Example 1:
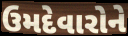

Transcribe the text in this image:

ઉમદેવારોને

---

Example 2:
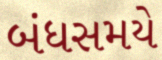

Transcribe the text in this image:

બંધસમયે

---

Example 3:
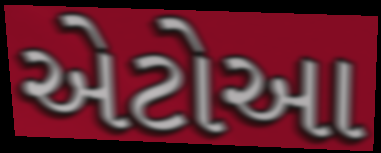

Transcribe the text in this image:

એટોઆ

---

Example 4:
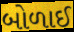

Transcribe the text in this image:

બોળાઈ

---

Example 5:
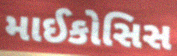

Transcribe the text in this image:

માઈકોસિસ